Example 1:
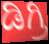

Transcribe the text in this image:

ಡಿಗ್ರಿ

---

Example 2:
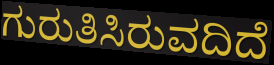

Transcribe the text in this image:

ಗುರುತಿಸಿರುವದಿದೆ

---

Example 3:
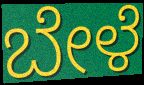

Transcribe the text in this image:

ಬೇಳೆ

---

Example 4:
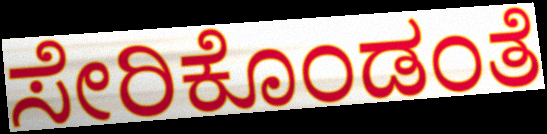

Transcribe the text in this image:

ಸೇರಿಕೊಂಡಂತೆ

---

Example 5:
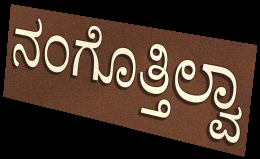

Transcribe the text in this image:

ನಂಗೊತ್ತಿಲ್ವಾ